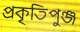
প্রকৃতিপুঞ্জ